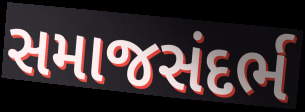
સમાજસંદર્ભ